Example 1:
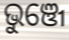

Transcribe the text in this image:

ଭୁଞ୍ଜେ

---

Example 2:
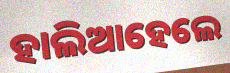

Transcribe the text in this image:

ହାଲିଆହେଲେ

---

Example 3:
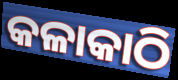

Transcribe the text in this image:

କଳାକାଠି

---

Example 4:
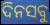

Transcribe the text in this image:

ଦିନସବୁ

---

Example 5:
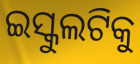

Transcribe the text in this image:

ଇସ୍କୁଲଟିକୁ